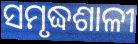
ସମୃଦ୍ଧଶାଳୀ